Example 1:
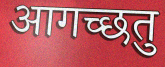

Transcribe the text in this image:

आगच्छतु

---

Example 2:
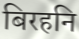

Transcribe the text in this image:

बिरहनि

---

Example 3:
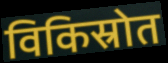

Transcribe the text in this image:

विकिस्रोत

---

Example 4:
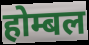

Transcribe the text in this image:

होम्बल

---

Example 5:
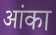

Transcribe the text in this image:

आंका